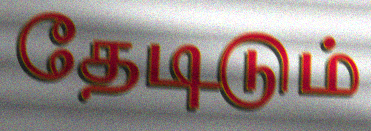
தேடிடும்